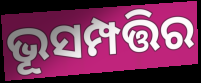
ଭୂସମ୍ପତ୍ତିର